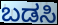
ಬಡಸಿ